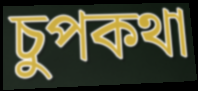
চুপকথা